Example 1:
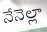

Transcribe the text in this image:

నేనెల్లా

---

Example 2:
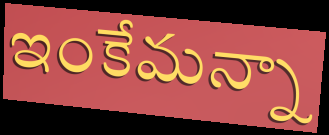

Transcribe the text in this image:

ఇంకేమన్నా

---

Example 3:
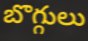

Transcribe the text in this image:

బొగ్గులు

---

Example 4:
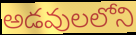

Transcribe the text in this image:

అడవులలోని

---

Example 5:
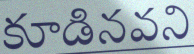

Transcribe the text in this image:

కూడినవని